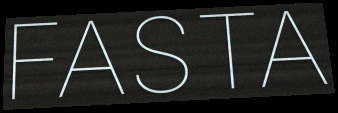
FASTA